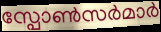
സ്പോൺസർമാർ